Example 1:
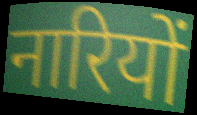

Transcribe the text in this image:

नारियों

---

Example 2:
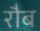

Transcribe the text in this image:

रौब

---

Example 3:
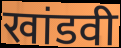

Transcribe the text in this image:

खांडवी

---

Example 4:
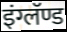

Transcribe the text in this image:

इंग्लॅण्ड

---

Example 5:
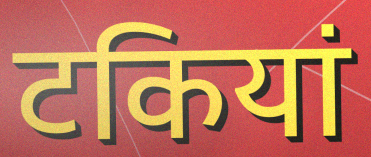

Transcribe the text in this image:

टकियां